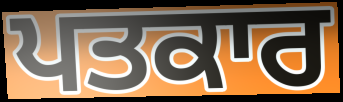
ਪਤਕਾਰ